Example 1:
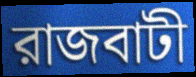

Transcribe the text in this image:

রাজবাটী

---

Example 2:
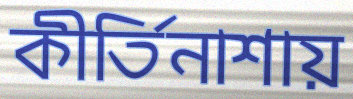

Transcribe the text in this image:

কীর্তিনাশায়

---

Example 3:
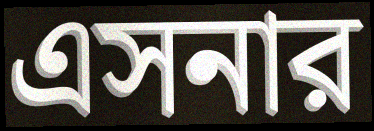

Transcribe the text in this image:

এসনার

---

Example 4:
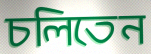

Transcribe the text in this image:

চলিতেন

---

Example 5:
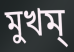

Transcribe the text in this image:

মুখম্